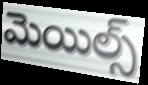
మెయిల్స్